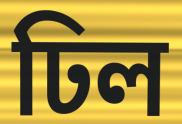
ঢিল